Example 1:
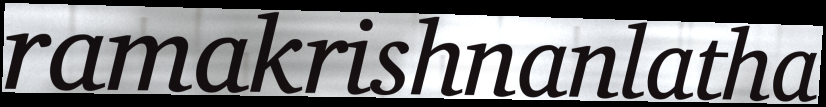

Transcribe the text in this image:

ramakrishnanlatha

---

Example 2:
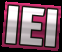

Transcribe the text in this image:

IEI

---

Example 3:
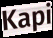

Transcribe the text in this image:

Kapi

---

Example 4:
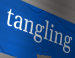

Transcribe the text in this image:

tangling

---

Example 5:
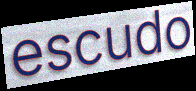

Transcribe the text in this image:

escudo